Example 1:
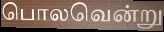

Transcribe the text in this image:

பொலவென்று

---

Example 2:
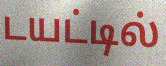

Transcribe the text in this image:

டயட்டில்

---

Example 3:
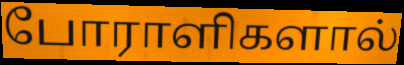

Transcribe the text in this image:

போராளிகளால்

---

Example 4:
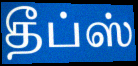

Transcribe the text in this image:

தீப்ஸ்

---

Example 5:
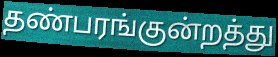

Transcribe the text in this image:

தண்பரங்குன்றத்து